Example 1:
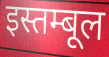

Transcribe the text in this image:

इस्तम्बूल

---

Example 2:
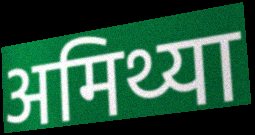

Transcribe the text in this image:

अमिथ्या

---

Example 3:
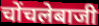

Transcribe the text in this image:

चोंचलेबाजी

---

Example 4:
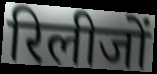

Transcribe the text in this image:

रिलीजों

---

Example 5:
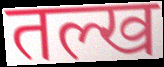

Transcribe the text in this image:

तल्ख